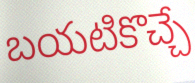
బయటికొచ్చే